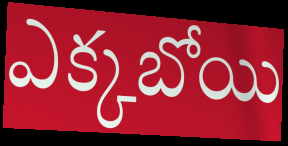
ఎక్కబోయి